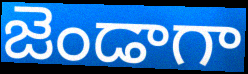
జెండాగా